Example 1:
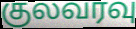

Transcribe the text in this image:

குலவரவு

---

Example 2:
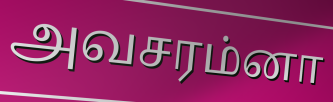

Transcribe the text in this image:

அவசரம்னா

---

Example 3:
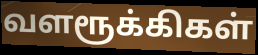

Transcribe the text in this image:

வளரூக்கிகள்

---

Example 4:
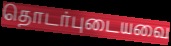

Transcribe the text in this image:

தொடர்புடையவை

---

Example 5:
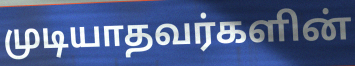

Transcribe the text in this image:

முடியாதவர்களின்